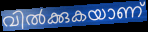
വിൽക്കുകയാണ്